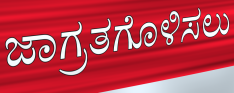
ಜಾಗ್ರತಗೊಳಿಸಲು